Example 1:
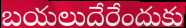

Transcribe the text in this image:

బయలుదేరేందుకు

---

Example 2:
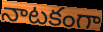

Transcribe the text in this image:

నాటకంగా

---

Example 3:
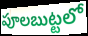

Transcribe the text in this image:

పూలబుట్టలో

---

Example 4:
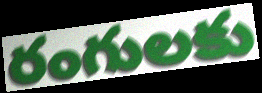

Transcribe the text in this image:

రంగులకు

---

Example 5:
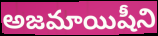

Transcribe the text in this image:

అజమాయిషీని